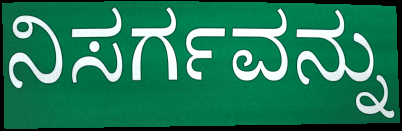
ನಿಸರ್ಗವನ್ನು